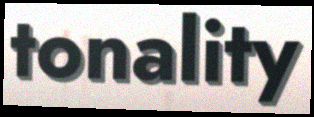
tonality